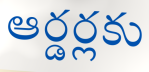
ఆర్డర్లకు